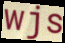
wjs